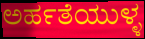
ಅರ್ಹತೆಯುಳ್ಳ